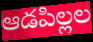
ఆడపిల్లల